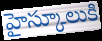
హైస్కూలుకి